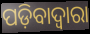
ପଡ଼ିବାଦ୍ୱାରା